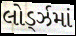
લોર્ડ્ઝમાં